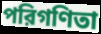
পরিগণিতা